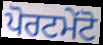
ਪੋਰਟਮੇਂਟੋ